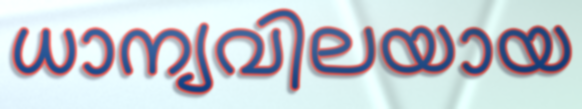
ധാന്യവിലയായ